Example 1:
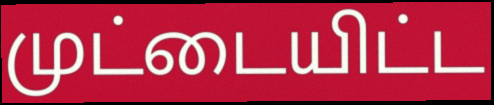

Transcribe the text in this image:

முட்டையிட்ட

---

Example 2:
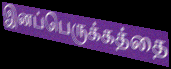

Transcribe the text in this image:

இனப்பெருக்கத்தை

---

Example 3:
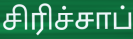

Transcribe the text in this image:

சிரிச்சாப்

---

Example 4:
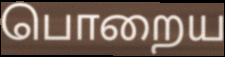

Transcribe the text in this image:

பொறைய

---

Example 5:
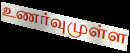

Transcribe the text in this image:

உணர்வுமுள்ள